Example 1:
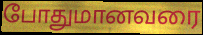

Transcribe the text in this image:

போதுமானவரை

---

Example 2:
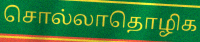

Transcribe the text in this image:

சொல்லாதொழிக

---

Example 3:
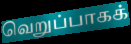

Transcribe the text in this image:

வெறுப்பாகக்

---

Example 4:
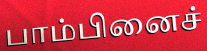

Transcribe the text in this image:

பாம்பினைச்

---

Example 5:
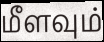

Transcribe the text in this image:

மீளவும்